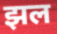
झल